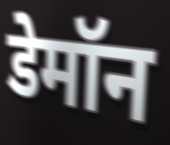
डेमॉन